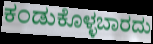
ಕಂಡುಕೊಳ್ಳಬಾರದು